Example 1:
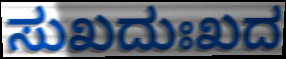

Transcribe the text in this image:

ಸುಖದುಃಖದ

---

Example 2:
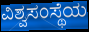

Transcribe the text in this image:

ವಿಶ್ವಸಂಸ್ಥೆಯ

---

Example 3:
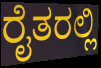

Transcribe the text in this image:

ರೈತರಲ್ಲಿ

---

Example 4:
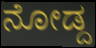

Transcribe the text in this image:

ನೋಡ್ದ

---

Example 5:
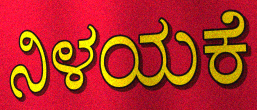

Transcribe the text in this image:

ನಿಳಯಕೆ